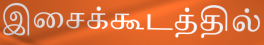
இசைக்கூடத்தில்